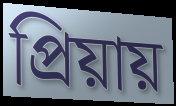
প্রিয়ায়